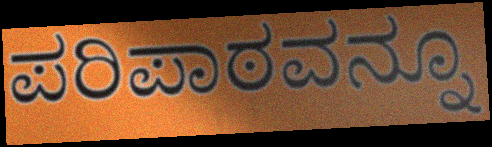
ಪರಿಪಾಠವನ್ನೂ